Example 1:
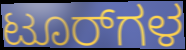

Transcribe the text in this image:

ಟೂರ್‌ಗಳ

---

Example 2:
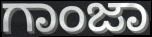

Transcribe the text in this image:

ಗಾಂಜಾ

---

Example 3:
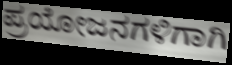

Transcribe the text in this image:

ಪ್ರಯೋಜನಗಳಿಗಾಗಿ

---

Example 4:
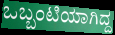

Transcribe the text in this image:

ಒಬ್ಬಂಟಿಯಾಗಿದ್ದ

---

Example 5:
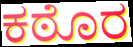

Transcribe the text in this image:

ಕಠೊರ